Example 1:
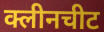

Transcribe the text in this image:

क्लीनचीट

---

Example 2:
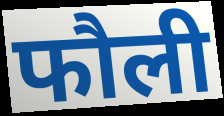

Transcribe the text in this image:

फौली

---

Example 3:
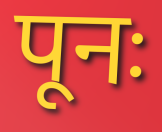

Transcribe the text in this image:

पूनः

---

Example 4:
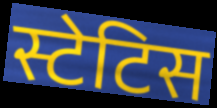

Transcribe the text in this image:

स्टेटिस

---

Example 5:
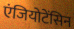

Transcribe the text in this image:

एंजियोटेंसिन